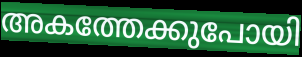
അകത്തേക്കുപോയി